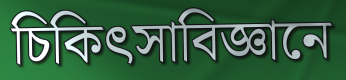
চিকিৎসাবিজ্ঞানে